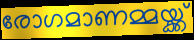
രോഗമാണമ്മയ്ക്ക്